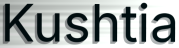
Kushtia